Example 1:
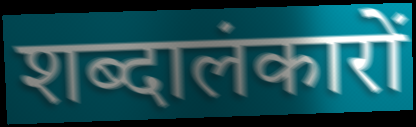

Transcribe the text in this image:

शब्दालंकारों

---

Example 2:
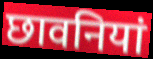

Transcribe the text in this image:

छावनियां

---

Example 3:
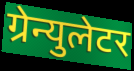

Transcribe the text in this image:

ग्रेन्युलेटर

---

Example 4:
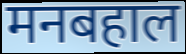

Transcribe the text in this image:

मनबहाल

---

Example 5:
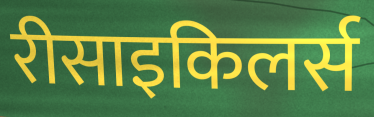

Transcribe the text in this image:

रीसाइकिलर्स